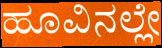
ಹೂವಿನಲ್ಲೇ